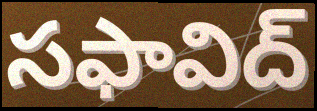
సఫావిద్